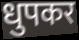
धुपकर